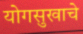
योगसुखाचे